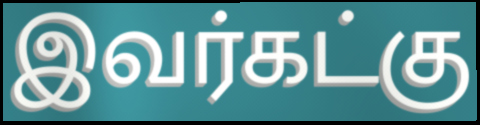
இவர்கட்கு